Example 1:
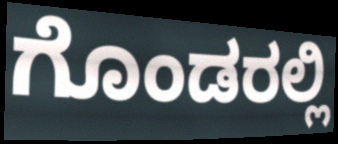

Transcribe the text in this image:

ಗೊಂಡರಲ್ಲಿ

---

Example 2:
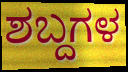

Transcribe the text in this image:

ಶಬ್ದಗಳ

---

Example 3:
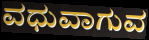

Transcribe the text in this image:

ವಧುವಾಗುವ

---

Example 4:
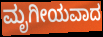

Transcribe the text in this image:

ಮೃಗೀಯವಾದ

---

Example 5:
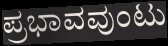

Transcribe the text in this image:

ಪ್ರಭಾವವುಂಟು